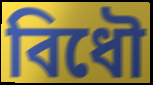
বিধৌ